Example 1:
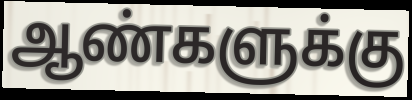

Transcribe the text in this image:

ஆண்களுக்கு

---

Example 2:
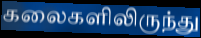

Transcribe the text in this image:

கலைகளிலிருந்து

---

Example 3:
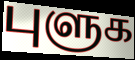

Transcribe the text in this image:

புளுக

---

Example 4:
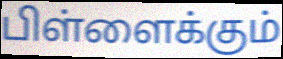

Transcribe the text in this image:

பிள்ளைக்கும்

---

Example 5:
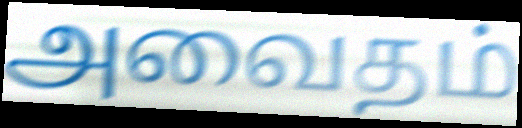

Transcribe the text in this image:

அவைதம்